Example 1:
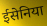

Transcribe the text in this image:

ईसेनिया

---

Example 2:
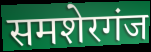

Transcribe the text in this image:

समशेरगंज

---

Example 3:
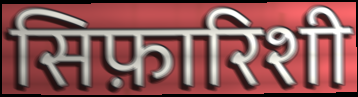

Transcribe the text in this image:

सिफ़ारिशी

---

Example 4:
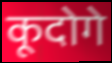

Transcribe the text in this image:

कूदोगे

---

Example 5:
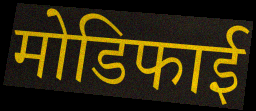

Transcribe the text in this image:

मोडिफाई